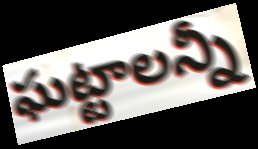
ఘట్టాలన్నీ